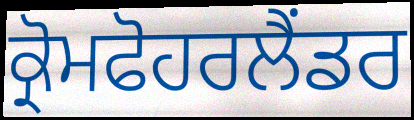
ਕ੍ਰੋਮਫੋਹਰਲੈਂਡਰ